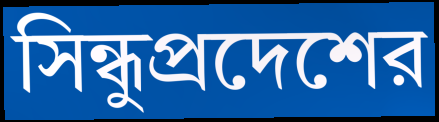
সিন্ধুপ্রদেশের